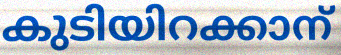
കുടിയിറക്കാന്